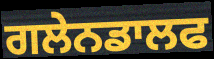
ਗਲੇਨਡਾਲਫ